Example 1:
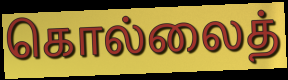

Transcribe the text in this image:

கொல்லைத்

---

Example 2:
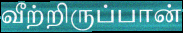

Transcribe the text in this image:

வீற்றிருப்பான்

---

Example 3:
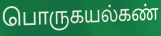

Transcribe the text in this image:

பொருகயல்கண்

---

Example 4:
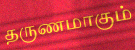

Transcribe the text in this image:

தருணமாகும்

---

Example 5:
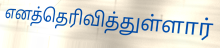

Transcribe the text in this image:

எனத்தெரிவித்துள்ளார்